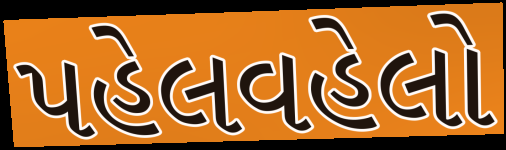
પહેલવહેલો